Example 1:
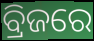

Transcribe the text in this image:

ବ୍ରିଜରେ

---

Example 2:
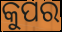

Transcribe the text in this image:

କୁପର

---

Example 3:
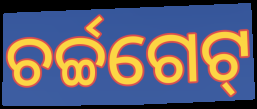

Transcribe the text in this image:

ଚର୍ଚ୍ଚଗେଟ୍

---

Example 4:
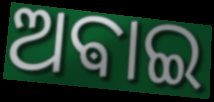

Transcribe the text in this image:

ଅଵାଇ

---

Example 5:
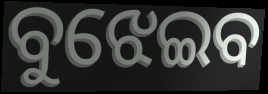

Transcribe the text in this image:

ବୁଝେଇବ